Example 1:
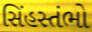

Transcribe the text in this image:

સિંહસ્તંભો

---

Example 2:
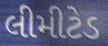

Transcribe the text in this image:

લીમીટેડ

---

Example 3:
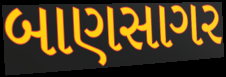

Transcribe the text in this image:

બાણસાગર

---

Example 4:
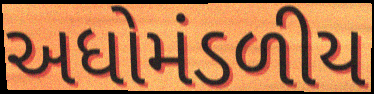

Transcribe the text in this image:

અધોમંડળીય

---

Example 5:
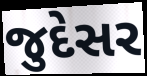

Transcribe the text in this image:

જુદેસર